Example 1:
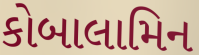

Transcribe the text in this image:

કોબાલામિન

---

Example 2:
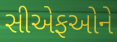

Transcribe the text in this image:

સીએફઓને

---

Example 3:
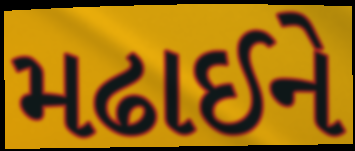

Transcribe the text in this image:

મઢાઈને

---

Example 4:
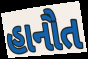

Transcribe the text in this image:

હાનૌત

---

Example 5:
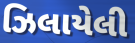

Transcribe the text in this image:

ઝિલાયેલી